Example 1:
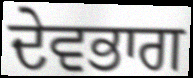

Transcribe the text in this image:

ਦੇਵਭਾਗ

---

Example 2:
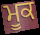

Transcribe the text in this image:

ਮੂਕ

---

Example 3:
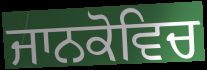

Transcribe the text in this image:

ਜਾਨਕੋਵਿਚ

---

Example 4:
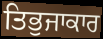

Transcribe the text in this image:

ਤਿਭੁਜਾਕਾਰ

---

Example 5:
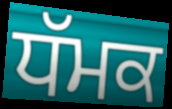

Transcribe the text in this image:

ਧੱਮਕ